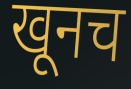
खूनच